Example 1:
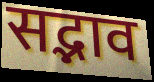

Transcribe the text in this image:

सद्भाव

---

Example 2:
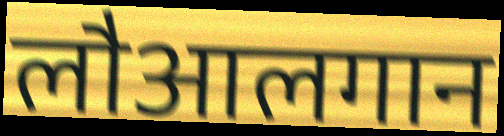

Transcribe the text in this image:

लौआलगान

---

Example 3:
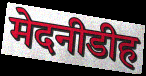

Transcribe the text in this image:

मेदनीडीह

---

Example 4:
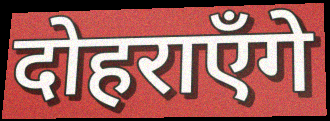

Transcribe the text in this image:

दोहराएँगे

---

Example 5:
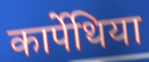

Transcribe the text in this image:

कार्पेथिया